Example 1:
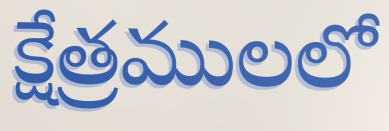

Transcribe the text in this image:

క్షేత్రములలో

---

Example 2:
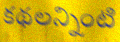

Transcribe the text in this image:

కథలన్నింటి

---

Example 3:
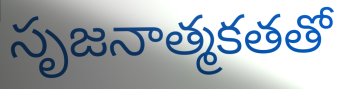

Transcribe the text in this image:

సృజనాత్మకతతో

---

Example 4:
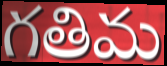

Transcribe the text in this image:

గతిమ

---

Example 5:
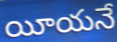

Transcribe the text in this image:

యీయనే